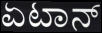
ಏಟಾನ್